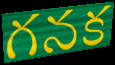
గనక